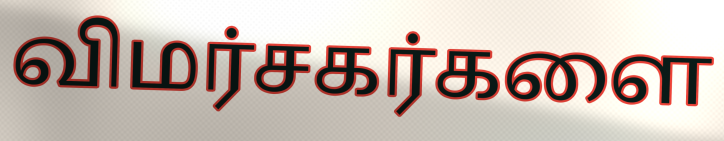
விமர்சகர்களை